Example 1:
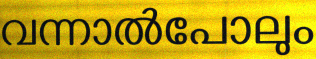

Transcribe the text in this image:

വന്നാൽപോലും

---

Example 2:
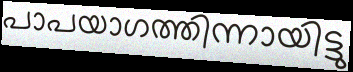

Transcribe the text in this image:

പാപയാഗത്തിന്നായിട്ടു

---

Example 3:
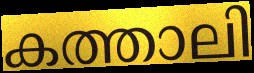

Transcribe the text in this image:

കത്താലി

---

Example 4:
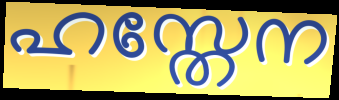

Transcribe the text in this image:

ഹസ്തേന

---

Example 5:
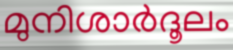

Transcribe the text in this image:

മുനിശാർദൂലം